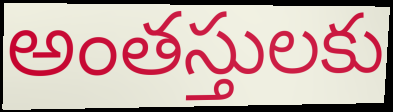
అంతస్తులకు